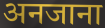
अनजाना